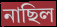
নাছিল